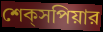
শেক্‌সপিয়ার